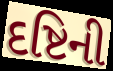
દષ્ટિની